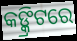
କଙ୍କ୍ରିଟରେ